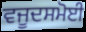
ਵਜੂਦਸਮੋਈ